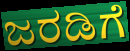
ಜರಡಿಗೆ